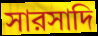
সারসাদি